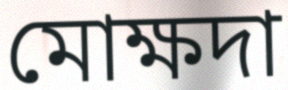
মোক্ষদা